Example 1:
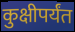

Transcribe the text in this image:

कुक्षीपर्यंत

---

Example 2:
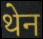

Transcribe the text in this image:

थेन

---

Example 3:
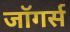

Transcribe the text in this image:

जॉगर्स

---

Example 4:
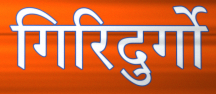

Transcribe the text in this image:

गिरिदुर्गो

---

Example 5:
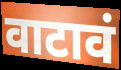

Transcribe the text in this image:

वाटावं